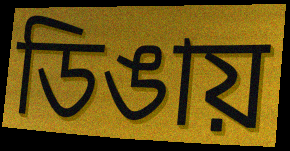
ডিঙায়